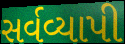
સર્વવ્યાપી